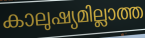
കാലുഷ്യമില്ലാത്ത